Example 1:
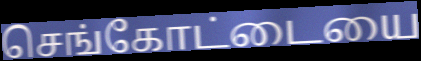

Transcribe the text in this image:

செங்கோட்டையை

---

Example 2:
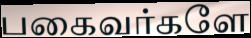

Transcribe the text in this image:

பகைவர்களே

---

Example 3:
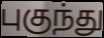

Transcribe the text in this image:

புகுந்து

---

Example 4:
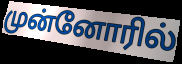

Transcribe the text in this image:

முன்னோரில்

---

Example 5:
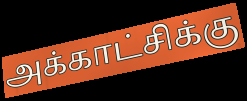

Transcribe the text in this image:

அக்காட்சிக்கு